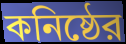
কনিষ্ঠের